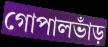
গোপালভাঁড়